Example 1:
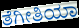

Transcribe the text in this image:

ತೆಗೀತಿಯಾ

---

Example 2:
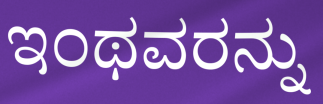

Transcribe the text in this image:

ಇಂಥವರನ್ನು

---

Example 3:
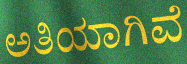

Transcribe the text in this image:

ಅತಿಯಾಗಿವೆ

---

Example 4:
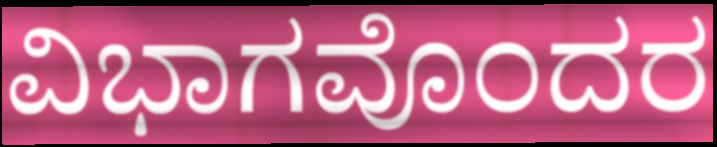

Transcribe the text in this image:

ವಿಭಾಗವೊಂದರ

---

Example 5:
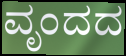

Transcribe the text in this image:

ವೃಂದದ